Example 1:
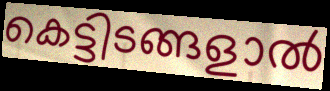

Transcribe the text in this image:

കെട്ടിടങ്ങളാൽ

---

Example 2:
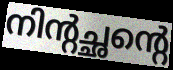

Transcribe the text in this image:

നിന്റച്ഛന്റെ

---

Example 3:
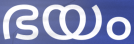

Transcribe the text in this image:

ഭയം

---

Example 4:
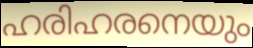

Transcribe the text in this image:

ഹരിഹരനെയും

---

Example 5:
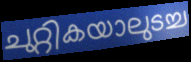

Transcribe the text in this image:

ചുറ്റികയാലുടച്ച